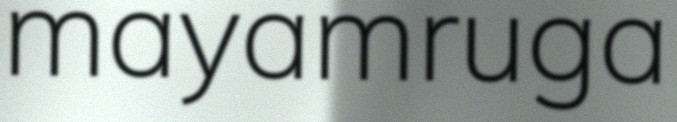
mayamruga